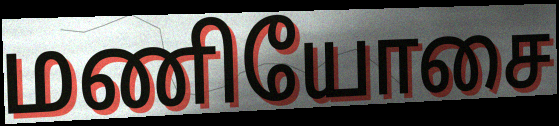
மணியோசை